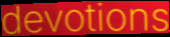
devotions